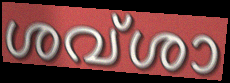
ശവ്ശാ